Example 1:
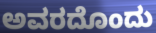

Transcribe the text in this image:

ಅವರದೊಂದು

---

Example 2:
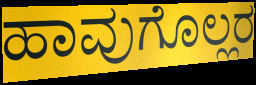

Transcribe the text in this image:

ಹಾವುಗೊಲ್ಲರ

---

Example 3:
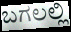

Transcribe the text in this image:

ಬಗಲಲ್ಲಿ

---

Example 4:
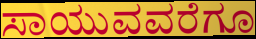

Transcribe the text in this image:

ಸಾಯುವವರೆಗೂ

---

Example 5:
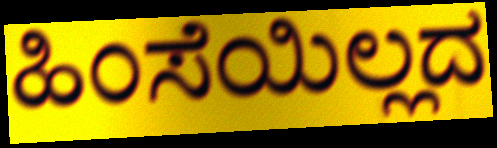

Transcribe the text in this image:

ಹಿಂಸೆಯಿಲ್ಲದ